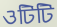
ওটিটি